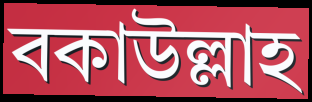
বকাউল্লাহ